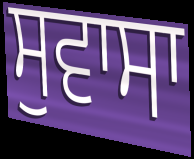
ਸੁਵਾਸਾ